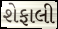
શેફાલી